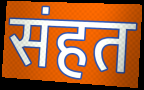
संहत